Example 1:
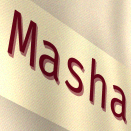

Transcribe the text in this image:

Masha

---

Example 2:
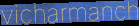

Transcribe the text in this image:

vicharmanch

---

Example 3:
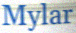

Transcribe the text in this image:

Mylar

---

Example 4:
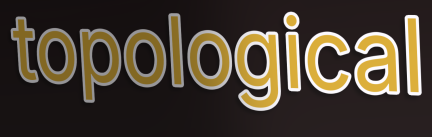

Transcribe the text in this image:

topological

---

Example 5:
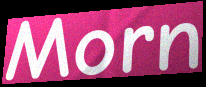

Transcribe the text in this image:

Morn